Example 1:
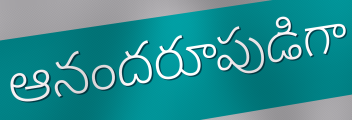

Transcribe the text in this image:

ఆనందరూపుడిగా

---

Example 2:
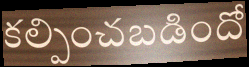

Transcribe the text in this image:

కల్పించబడిందో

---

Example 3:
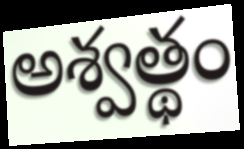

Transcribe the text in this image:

అశ్వత్థం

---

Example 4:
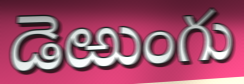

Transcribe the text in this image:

డెఱుంగు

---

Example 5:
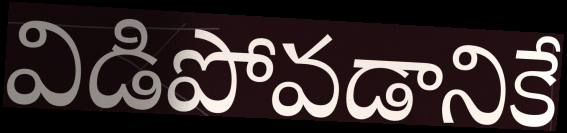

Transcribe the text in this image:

విడిపోవడానికే